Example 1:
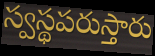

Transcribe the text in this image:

స్వస్థపరుస్తారు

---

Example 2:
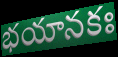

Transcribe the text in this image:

భయానకః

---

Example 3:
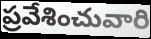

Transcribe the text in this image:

ప్రవేశించువారి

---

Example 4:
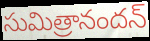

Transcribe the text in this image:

సుమిత్రానందన్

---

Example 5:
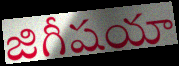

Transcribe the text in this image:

జిగీషయా